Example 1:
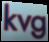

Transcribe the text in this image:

kvg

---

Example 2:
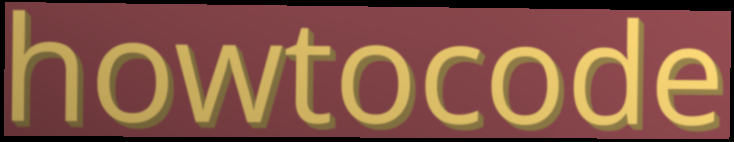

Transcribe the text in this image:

howtocode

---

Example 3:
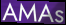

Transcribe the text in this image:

AMAs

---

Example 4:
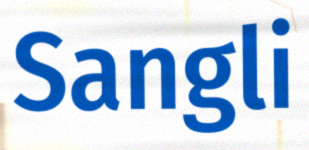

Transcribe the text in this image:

Sangli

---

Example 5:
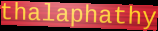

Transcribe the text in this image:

thalaphathy